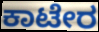
ಕಾಟೇರ